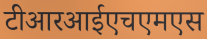
टीआरआईएचएमएस